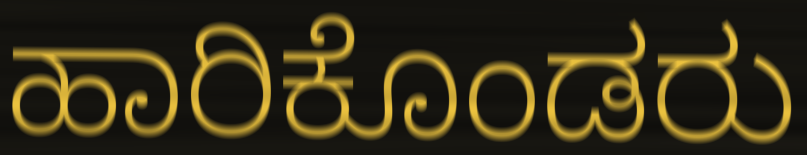
ಹಾರಿಕೊಂಡರು